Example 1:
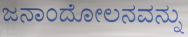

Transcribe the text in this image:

ಜನಾಂದೋಲನವನ್ನು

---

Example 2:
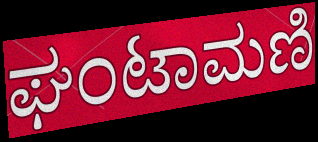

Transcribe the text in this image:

ಘಂಟಾಮಣಿ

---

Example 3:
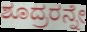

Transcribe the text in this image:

ಶೂದ್ರರನ್ನೇ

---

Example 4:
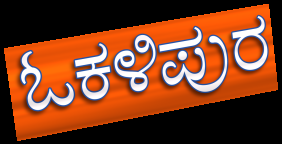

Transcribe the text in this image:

ಓಕಳಿಪುರ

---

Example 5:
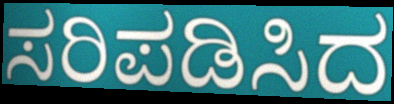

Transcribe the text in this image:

ಸರಿಪಡಿಸಿದ